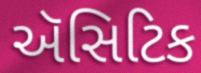
ઍસિટિક